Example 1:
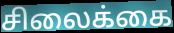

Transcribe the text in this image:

சிலைக்கை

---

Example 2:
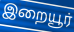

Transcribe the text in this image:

இறையூர்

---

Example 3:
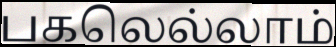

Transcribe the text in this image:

பகலெல்லாம்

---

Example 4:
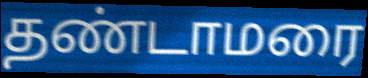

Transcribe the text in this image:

தண்டாமரை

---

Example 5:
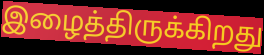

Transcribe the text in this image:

இழைத்திருக்கிறது